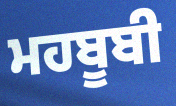
ਮਹਬੂਬੀ